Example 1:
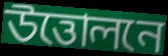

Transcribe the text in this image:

উত্তোলনে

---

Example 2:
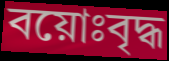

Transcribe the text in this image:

বয়োঃবৃদ্ধ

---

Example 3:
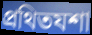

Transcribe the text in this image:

প্রথিতযশা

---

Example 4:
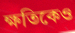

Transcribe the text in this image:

ক্ষতিকেও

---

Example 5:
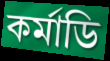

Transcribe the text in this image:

কর্মাডি